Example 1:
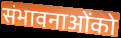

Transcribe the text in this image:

संभावनाओंको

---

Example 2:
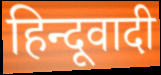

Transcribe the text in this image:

हिन्दूवादी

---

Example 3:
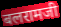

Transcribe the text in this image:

बलरामजी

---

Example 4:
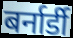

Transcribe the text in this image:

बर्नार्डी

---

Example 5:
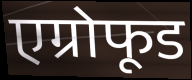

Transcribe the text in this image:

एग्रोफूड